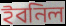
ইবনিল